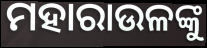
ମହାରାଉଳଙ୍କୁ